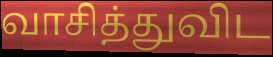
வாசித்துவிட